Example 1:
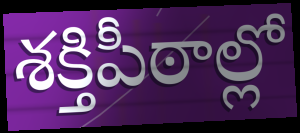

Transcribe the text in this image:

శక్తిపీఠాల్లో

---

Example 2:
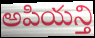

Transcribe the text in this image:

అపియన్తి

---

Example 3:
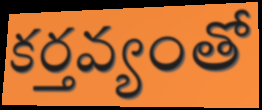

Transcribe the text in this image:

కర్తవ్యంతో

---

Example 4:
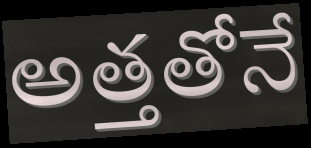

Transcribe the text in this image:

అత్తతోనే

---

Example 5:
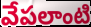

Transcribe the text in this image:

వేపలాంటి